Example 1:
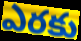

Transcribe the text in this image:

ఎరకు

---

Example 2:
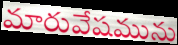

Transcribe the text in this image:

మారువేషమును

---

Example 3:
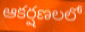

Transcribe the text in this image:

ఆకర్షణలలో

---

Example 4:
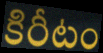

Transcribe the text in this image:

కిరీటం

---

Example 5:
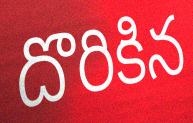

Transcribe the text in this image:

దొరికిన